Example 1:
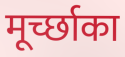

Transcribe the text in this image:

मूर्च्छाका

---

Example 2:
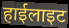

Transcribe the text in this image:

हाईलाइट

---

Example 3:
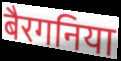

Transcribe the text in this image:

बैरगनिया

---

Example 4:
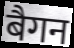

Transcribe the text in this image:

बैगन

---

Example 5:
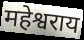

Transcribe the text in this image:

महेश्वराय